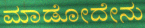
ಮಾಡೋದೇನು